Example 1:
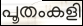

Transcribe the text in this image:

പൂതംകളി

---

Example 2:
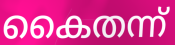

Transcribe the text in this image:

കൈതന്ന്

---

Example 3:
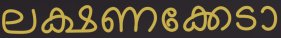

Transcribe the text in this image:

ലക്ഷണക്കേടാ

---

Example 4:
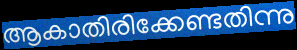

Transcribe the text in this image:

ആകാതിരിക്കേണ്ടതിന്നു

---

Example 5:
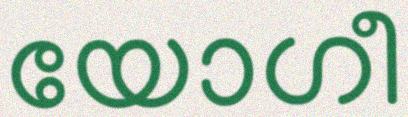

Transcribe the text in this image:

യോഗീ